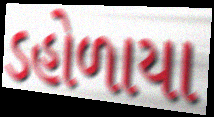
ડહોળાયા